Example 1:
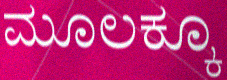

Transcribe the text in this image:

ಮೂಲಕ್ಕೂ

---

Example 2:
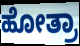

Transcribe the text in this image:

ಹೋತ್ರಾ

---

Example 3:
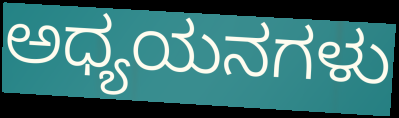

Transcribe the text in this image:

ಅಧ್ಯಯನಗಳು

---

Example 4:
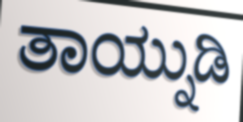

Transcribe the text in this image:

ತಾಯ್ನುಡಿ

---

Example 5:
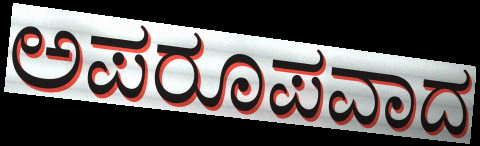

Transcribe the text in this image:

ಅಪರೂಪವಾದ